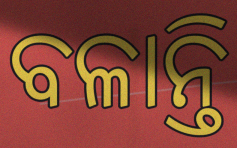
ବଳାନ୍ତି